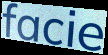
facie